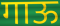
गाऊ